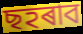
ছহৰাব